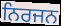
ਨਿਰਜਨ